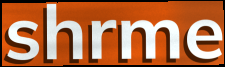
shrme